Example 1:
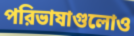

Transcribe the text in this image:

পরিভাষাগুলোও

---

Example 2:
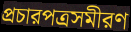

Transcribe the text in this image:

প্রচারপত্রসমীরণ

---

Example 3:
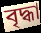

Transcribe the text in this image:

বৃদ্ধা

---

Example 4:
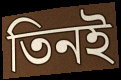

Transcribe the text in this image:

তিনই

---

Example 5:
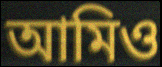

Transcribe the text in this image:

আমিও